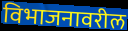
विभाजनावरील